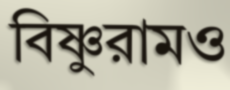
বিষ্ণুরামও